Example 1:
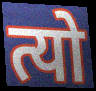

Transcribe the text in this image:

त्यो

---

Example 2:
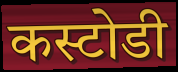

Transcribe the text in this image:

कस्टोडी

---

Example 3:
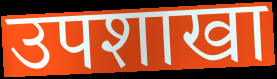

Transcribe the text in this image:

उपशाखा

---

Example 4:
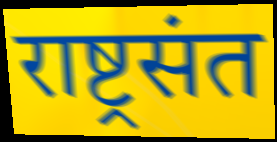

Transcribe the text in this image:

राष्ट्रसंत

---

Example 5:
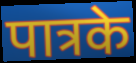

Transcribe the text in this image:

पात्रके